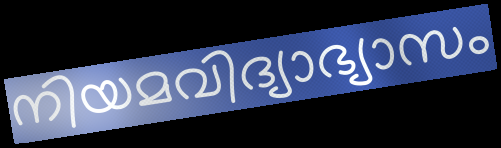
നിയമവിദ്യാഭ്യാസം